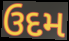
ઉદમ